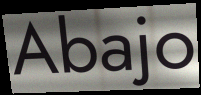
Abajo